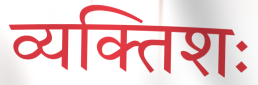
व्यक्तिशः